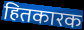
हितकारक